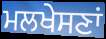
ਮਲਖੇਸਣਾਂ